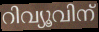
റിവ്യൂവിന്